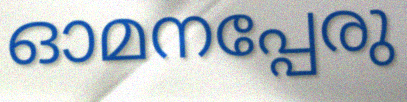
ഓമനപ്പേരു